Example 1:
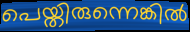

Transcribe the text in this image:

പെയ്തിരുന്നെങ്കിൽ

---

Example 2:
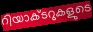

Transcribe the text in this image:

റിയാക്ടറുകളുടെ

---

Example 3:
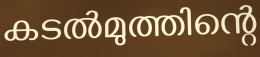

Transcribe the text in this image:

കടൽമുത്തിന്റെ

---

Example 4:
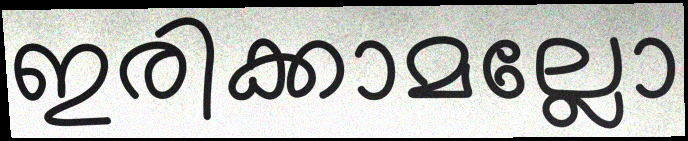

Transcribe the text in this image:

ഇരിക്കാമല്ലോ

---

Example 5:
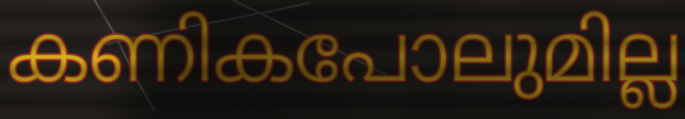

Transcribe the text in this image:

കണികപോലുമില്ല